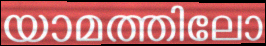
യാമത്തിലോ